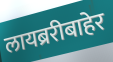
लायब्ररीबाहेर